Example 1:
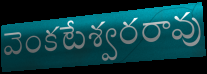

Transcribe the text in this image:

వెంకటేశ్వరరావు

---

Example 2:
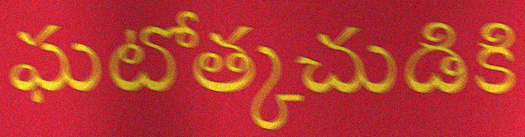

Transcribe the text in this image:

ఘటోత్కచుడికి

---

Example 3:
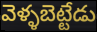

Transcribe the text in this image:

వెళ్ళబెట్టేడు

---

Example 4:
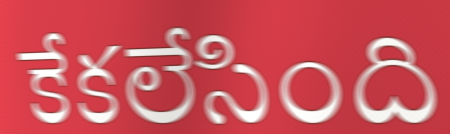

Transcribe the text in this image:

కేకలేసింది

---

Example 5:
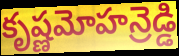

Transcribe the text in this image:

కృష్ణమోహన్రెడ్డి